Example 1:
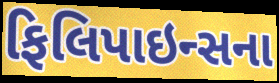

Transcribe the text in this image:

ફિલિપાઇન્સના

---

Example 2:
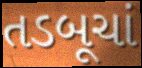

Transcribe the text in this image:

તડબૂચાં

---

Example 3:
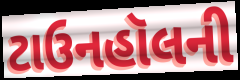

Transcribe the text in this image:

ટાઉનહૉલની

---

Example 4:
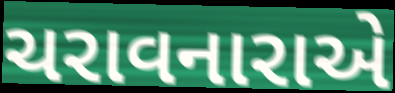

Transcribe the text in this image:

ચરાવનારાએ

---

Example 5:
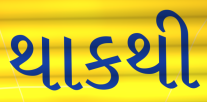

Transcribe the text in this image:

થાકથી